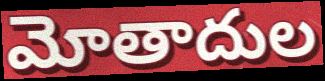
మోతాదుల